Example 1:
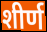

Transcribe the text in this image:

शीर्ण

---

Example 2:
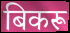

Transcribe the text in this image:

बिकरू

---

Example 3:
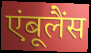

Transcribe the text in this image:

एंबूलैंस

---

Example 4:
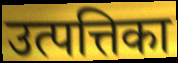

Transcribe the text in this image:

उत्पत्तिका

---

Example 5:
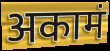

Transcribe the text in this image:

अकामं